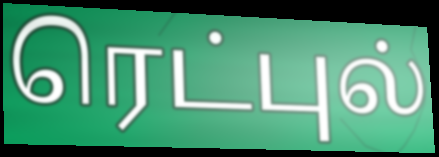
ரெட்புல்